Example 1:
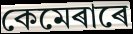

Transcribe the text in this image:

কেমেৰাৰে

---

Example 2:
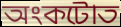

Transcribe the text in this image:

অংকটোত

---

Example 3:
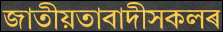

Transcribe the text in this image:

জাতীয়তাবাদীসকলৰ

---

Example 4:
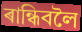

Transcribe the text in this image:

ৰান্ধিবলৈ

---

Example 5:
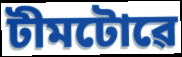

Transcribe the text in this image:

টীমটোৱে